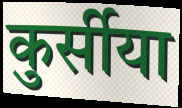
कुर्सीया